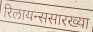
रिलायन्ससारख्या